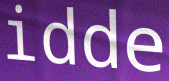
idde